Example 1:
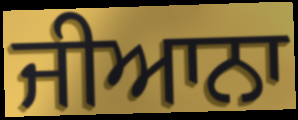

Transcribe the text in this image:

ਜੀਆਨਾ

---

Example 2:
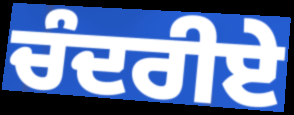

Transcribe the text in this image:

ਚੰਦਰੀਏ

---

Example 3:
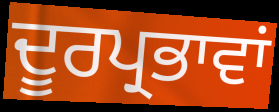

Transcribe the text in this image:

ਦੂਰਪ੍ਰਭਾਵਾਂ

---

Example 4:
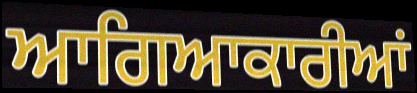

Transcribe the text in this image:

ਆਗਿਆਕਾਰੀਆਂ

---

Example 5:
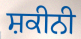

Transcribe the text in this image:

ਸ਼ਕੀਨੀ